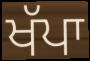
ਖੱਪਾ